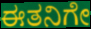
ಈತನಿಗೇ